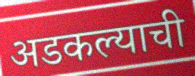
अडकल्याची